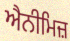
ਐਨੀਮਿਜ਼